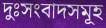
দুঃসংবাদসমূহ